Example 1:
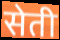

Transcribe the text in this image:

सेती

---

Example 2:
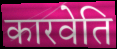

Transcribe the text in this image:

कारवेति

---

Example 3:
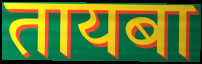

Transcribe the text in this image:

तायबा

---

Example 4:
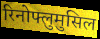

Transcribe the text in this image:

रिनोफ्लुमुसिल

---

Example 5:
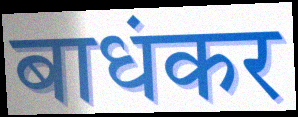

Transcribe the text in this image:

बाधंकर